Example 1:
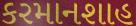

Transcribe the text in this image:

કરમાનશાહ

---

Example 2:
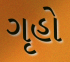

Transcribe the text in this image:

ગૃહો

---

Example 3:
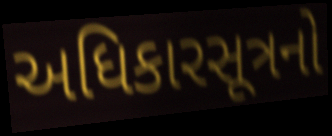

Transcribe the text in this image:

અધિકારસૂત્રનો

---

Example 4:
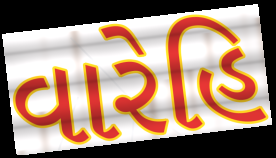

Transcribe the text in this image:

વારેહિ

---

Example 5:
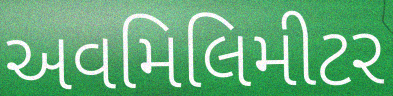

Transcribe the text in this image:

અવમિલિમીટર